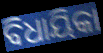
ବିଧାୟିକା